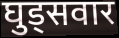
घुड्सवार